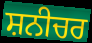
ਸ਼ਨੀਚਰ